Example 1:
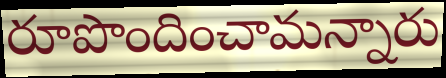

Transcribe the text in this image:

రూపొందించామన్నారు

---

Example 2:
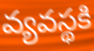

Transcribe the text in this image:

వ్యవస్థకి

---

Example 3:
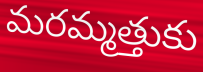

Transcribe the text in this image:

మరమ్మత్తుకు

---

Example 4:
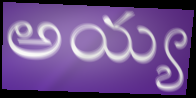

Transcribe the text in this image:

అయ్య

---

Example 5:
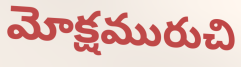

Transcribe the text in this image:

మోక్షమురుచి